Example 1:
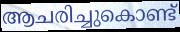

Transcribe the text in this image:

ആചരിച്ചുകൊണ്ട്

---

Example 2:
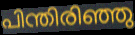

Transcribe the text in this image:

പിന്തിരിഞ്ഞു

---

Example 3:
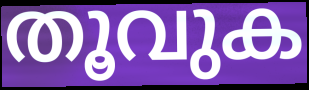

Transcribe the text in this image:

തൂവുക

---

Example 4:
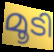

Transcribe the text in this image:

മൂടി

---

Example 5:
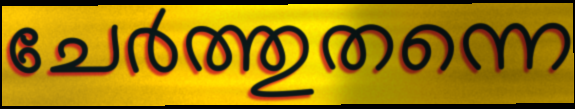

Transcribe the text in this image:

ചേർത്തുതന്നെ